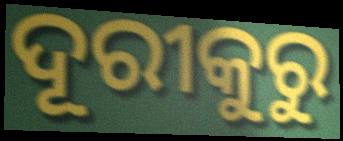
ଦୂରୀକୁରୁ